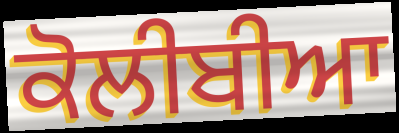
ਕੋਲੀਬੀਆ